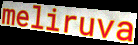
meliruva